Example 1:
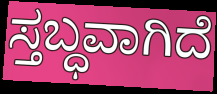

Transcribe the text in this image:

ಸ್ತಬ್ಧವಾಗಿದೆ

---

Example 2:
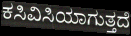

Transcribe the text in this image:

ಕಸಿವಿಸಿಯಾಗುತ್ತದೆ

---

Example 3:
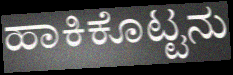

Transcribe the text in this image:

ಹಾಕಿಕೊಟ್ಟನು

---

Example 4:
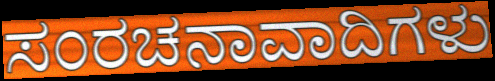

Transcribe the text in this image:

ಸಂರಚನಾವಾದಿಗಳು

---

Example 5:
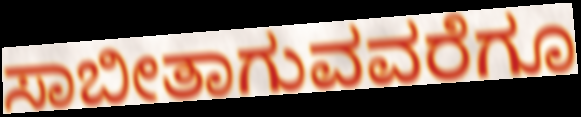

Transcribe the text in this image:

ಸಾಬೀತಾಗುವವರೆಗೂ